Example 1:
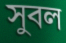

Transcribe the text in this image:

সুবল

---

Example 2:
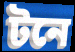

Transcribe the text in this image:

টনে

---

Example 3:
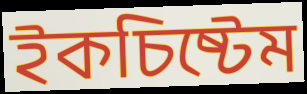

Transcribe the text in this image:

ইকচিষ্টেম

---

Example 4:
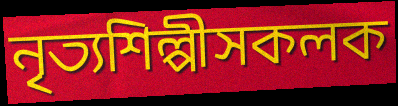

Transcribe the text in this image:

নৃত্যশিল্পীসকলক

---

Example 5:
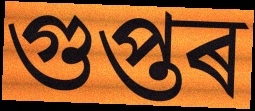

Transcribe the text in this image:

গুপ্তৰ